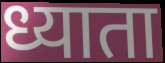
ध्याता